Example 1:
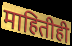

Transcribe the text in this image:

माहितीही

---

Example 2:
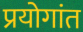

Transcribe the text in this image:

प्रयोगांत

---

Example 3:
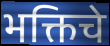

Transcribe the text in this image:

भक्तिचे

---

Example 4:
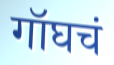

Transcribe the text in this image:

गॉघचं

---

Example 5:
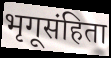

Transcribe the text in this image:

भृगूसंहिता